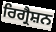
ਰਿਗ੍ਰੈਸ਼ਨ